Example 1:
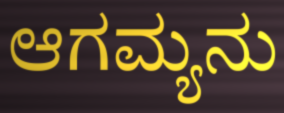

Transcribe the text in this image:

ಆಗಮ್ಯನು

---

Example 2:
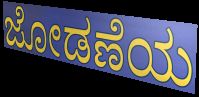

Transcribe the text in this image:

ಜೋಡಣೆಯ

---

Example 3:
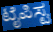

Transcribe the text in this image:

ಟೈಪಿಸ್ಟ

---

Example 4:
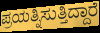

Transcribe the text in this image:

ಪ್ರಯತ್ನಿಸುತ್ತಿದ್ದಾರೆ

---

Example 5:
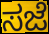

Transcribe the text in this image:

ಸಜೆ